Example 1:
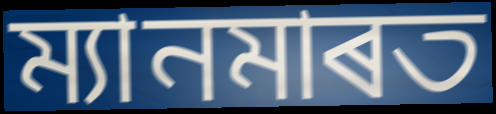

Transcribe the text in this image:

ম্যানমাৰত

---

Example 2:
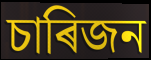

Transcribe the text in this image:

চাৰিজন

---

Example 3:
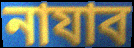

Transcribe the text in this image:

নাযাব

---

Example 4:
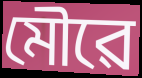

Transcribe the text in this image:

মৌৱে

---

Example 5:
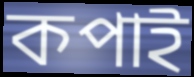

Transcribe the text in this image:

কপাই